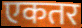
एकतर